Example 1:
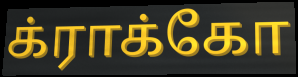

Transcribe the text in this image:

க்ராக்கோ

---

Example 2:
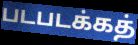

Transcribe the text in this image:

படபடக்கத்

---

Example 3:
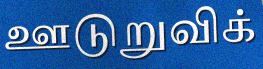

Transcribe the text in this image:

ஊடுறுவிக்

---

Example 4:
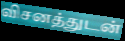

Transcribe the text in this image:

விசனத்துடன்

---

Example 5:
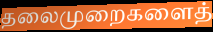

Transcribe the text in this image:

தலைமுறைகளைத்